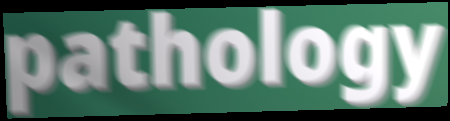
pathology